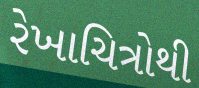
રેખાચિત્રોથી